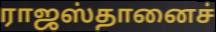
ராஜஸ்தானைச்